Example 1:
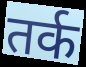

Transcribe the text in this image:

तर्क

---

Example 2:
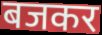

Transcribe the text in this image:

बजकर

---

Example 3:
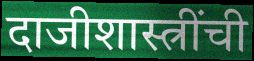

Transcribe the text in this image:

दाजीशास्त्रींची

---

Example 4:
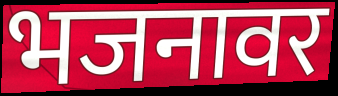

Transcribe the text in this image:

भजनावर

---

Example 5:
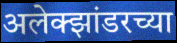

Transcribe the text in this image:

अलेक्झांडरच्या